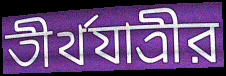
তীর্থযাত্রীর